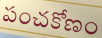
పంచకోణం